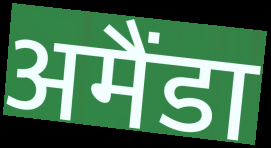
अमैंडा